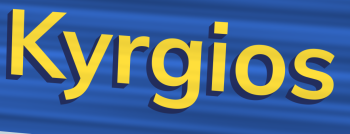
Kyrgios